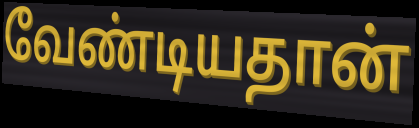
வேண்டியதான்